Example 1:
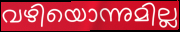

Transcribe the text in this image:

വഴിയൊന്നുമില്ല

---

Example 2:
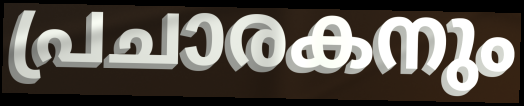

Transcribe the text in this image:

പ്രചാരകനും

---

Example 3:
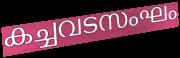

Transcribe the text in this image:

കച്ചവടസംഘം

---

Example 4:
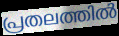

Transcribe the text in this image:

പ്രതലത്തിൽ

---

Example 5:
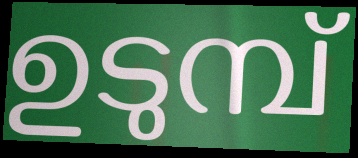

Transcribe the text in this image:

ഉടുമ്പ്